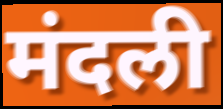
मंदली